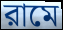
রামে